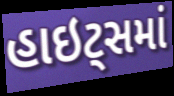
હાઇટ્સમાં